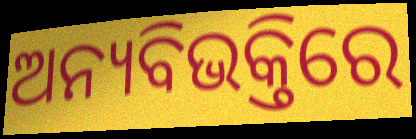
ଅନ୍ୟବିଭକ୍ତିରେ